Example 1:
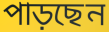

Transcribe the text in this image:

পাড়ছেন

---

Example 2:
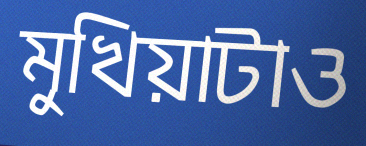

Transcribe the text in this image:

মুখিয়াটাও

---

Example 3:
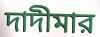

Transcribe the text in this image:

দাদীমার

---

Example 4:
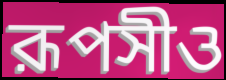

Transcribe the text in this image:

রূপসীও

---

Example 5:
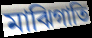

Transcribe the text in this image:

মাঝিগাতি